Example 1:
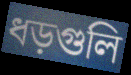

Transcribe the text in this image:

ধড়গুলি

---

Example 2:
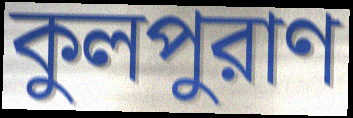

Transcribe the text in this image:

কুলপুরাণ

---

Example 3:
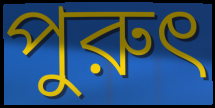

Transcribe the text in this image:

পুরুৎ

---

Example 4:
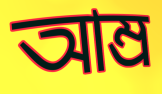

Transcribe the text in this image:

আম্র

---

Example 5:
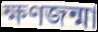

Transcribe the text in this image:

ক্ষণজন্মা